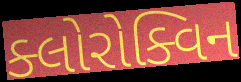
ક્લોરોક્વિન